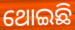
ଥୋଇଛି